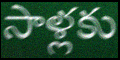
సాళ్లకు